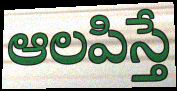
ఆలపిస్తే